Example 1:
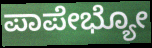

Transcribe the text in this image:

ಪಾಪೇಭ್ಯೋ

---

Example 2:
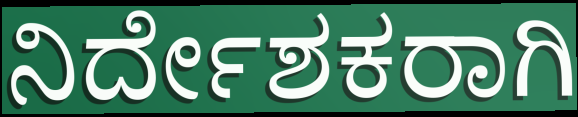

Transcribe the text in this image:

ನಿರ್ದೇಶಕರಾಗಿ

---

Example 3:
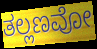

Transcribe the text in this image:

ತಲ್ಲಣವೋ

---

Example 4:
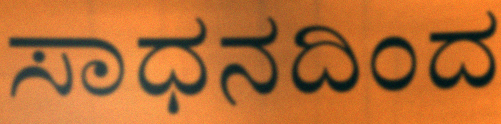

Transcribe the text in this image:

ಸಾಧನದಿಂದ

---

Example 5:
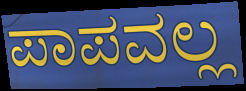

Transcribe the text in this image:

ಪಾಪವಲ್ಲ